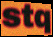
stq